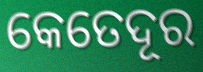
କେତେଦୂର